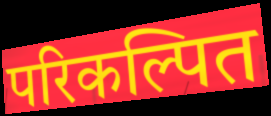
परिकल्पित